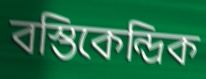
বস্তিকেন্দ্রিক